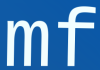
mf